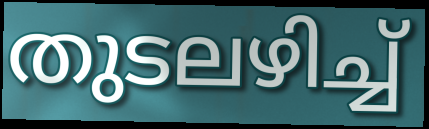
തുടലഴിച്ച്